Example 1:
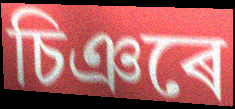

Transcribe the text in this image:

চিঞৰে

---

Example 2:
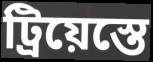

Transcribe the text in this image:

ট্ৰিয়েস্তে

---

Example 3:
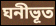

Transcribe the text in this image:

ঘনীভূত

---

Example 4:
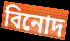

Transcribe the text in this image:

বিনোদ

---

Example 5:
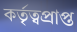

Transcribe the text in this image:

কৰ্তৃত্বপ্ৰাপ্ত